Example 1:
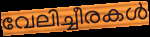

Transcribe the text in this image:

വേലിച്ചീരകൾ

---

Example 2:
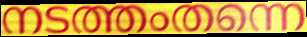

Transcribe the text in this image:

നടത്തംതന്നെ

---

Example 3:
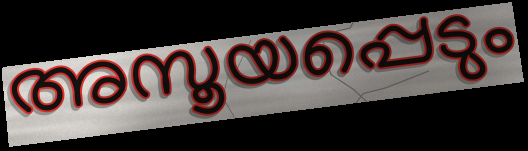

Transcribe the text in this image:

അസൂയപ്പെടും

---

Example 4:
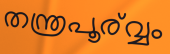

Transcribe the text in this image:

തന്ത്രപൂര്വ്വം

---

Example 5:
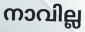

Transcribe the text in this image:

നാവില്ല